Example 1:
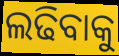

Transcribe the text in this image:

ଲଢିବାକୁ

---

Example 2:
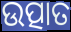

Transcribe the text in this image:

ଉତ୍ପାତ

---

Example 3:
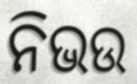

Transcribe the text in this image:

ନିଭଉ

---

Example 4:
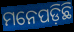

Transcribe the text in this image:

ମନେପଡ଼ିଛି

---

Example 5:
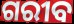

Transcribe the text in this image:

ଗରୀବ